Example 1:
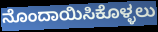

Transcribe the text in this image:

ನೊಂದಾಯಿಸಿಕೊಳ್ಳಲು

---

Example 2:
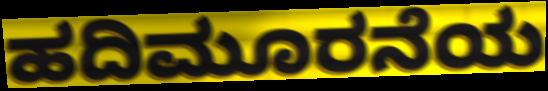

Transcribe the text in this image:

ಹದಿಮೂರನೆಯ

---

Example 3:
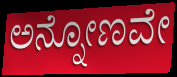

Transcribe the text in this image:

ಅನ್ನೋಣವೇ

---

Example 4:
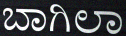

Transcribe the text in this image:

ಬಾಗಿಲಾ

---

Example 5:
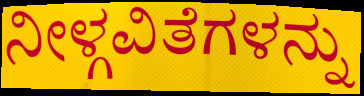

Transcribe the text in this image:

ನೀಳ್ಗವಿತೆಗಳನ್ನು